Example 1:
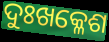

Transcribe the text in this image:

ଦୁଃଖକ୍ଳେଶ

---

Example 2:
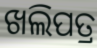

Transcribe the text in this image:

ଖଲିପତ୍ର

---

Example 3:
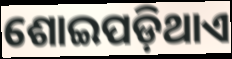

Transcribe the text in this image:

ଶୋଇପଡ଼ିଥାଏ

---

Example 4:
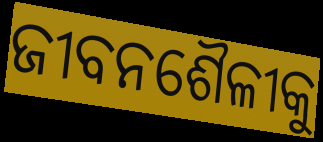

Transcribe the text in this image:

ଜୀବନଶୈଳୀକୁ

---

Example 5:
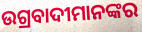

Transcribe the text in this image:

ଉଗ୍ରବାଦୀମାନଙ୍କର